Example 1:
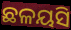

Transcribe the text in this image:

ଛଳୟସି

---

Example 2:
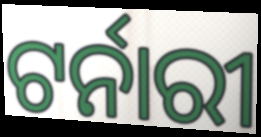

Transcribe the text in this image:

ଟର୍ନାରୀ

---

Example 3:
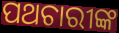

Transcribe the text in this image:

ପଥଚାରୀଙ୍କ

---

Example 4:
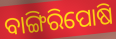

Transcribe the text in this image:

ବାଙ୍ଗିରିପୋଷି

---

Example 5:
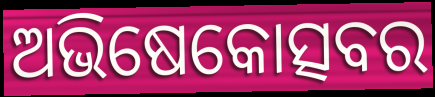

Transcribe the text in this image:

ଅଭିଷେକୋତ୍ସବର